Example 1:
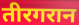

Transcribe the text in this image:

तीरगरान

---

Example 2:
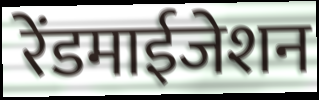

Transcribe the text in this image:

रेंडमाईजेशन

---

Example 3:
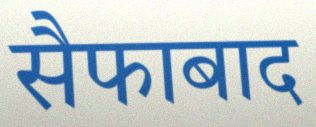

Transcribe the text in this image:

सैफाबाद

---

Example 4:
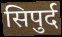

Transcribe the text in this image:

सिपुर्द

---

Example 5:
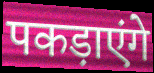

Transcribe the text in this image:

पकड़ाएंगे